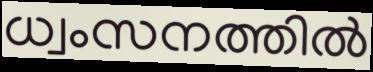
ധ്വംസനത്തിൽ